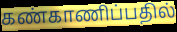
கண்காணிப்பதில்